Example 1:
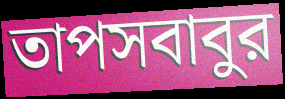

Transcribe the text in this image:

তাপসবাবুর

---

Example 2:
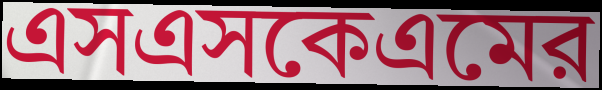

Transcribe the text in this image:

এসএসকেএমের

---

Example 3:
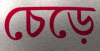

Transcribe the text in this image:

চেড়ে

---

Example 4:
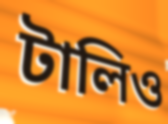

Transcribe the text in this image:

টালিও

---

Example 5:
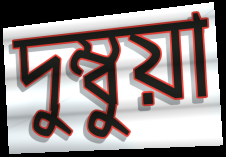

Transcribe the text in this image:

দুম্বুয়া